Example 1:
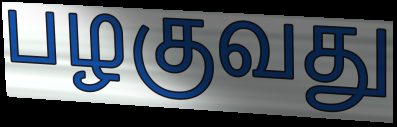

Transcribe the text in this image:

பழகுவது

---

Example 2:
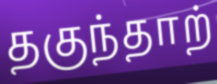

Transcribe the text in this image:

தகுந்தாற்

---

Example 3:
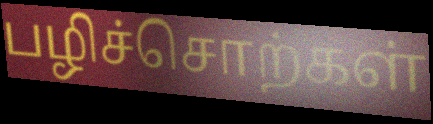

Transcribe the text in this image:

பழிச்சொற்கள்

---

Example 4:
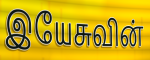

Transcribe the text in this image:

இயேசுவின்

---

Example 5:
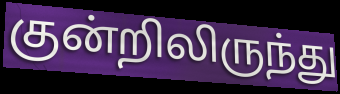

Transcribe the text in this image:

குன்றிலிருந்து